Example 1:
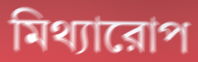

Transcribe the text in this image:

মিথ্যারোপ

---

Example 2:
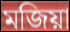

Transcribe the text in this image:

মজিয়া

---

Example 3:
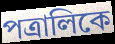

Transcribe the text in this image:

পত্রালিকে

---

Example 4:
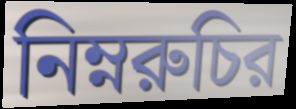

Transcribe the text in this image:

নিম্নরুচির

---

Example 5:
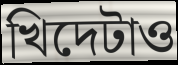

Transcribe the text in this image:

খিদেটাও